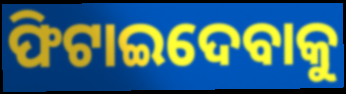
ଫିଟାଇଦେବାକୁ